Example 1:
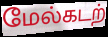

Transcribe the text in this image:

மேல்கடற்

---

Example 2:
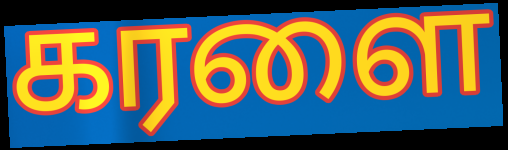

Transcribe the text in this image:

கரளை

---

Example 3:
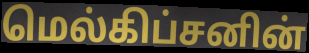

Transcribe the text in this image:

மெல்கிப்சனின்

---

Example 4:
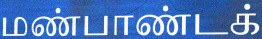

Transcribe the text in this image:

மண்பாண்டக்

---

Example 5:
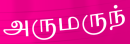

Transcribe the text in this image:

அருமருந்